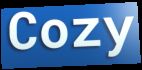
Cozy